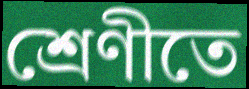
শ্ৰেণীতে